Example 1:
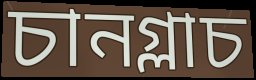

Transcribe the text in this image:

চানগ্লাচ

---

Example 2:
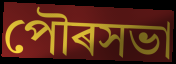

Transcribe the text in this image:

পৌৰসভা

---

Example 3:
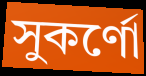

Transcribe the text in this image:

সুকৰ্ণো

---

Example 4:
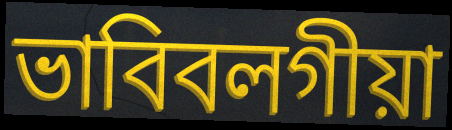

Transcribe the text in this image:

ভাবিবলগীয়া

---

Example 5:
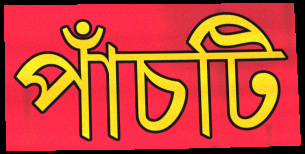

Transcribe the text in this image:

পাঁচটি